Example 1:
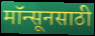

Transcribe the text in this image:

मॉन्सूनसाठी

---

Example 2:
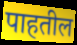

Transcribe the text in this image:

पाहतील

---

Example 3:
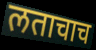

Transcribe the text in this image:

लताचाच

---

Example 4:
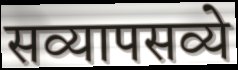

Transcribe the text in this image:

सव्यापसव्ये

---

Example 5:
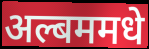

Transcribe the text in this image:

अल्बममधे